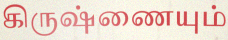
கிருஷ்ணையும்